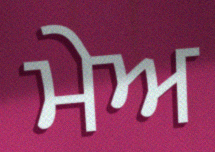
ਮੇਅ